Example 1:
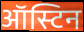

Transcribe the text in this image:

ऑस्टिन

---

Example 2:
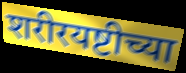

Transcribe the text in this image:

शरीरयष्टीच्या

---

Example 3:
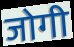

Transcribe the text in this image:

जोगी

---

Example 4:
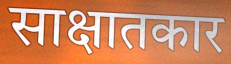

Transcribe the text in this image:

साक्षातकार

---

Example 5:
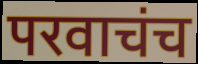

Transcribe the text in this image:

परवाचंच